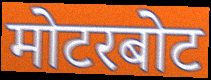
मोटरबोट